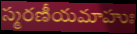
స్మరణీయమాహుః